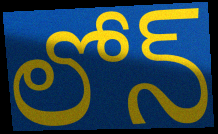
లోన్